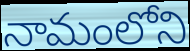
నామంలోని